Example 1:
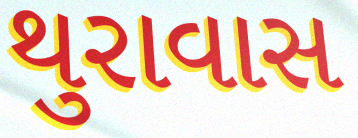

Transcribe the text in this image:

થુરાવાસ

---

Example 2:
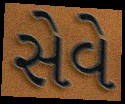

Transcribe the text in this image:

સેવે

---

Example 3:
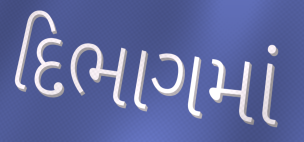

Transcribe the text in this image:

દિભાગમાં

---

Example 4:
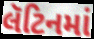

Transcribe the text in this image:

લૅટિનમાં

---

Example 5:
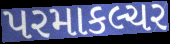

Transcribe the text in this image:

પરમાકલ્ચર